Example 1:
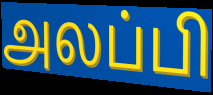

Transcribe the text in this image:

அலப்பி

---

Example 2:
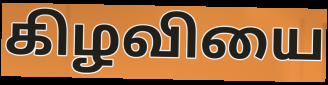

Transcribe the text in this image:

கிழவியை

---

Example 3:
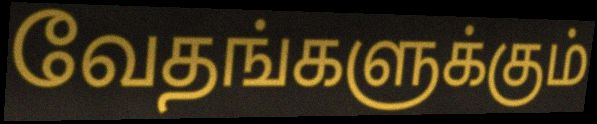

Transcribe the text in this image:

வேதங்களுக்கும்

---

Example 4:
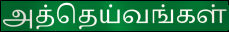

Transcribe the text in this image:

அத்தெய்வங்கள்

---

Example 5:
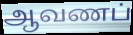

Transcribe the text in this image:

ஆவணப்